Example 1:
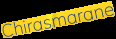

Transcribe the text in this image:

Chirasmarane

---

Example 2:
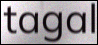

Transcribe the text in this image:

tagal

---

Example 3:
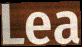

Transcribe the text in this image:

Lea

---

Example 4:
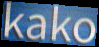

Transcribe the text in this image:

kako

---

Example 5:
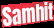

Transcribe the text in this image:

Samhit